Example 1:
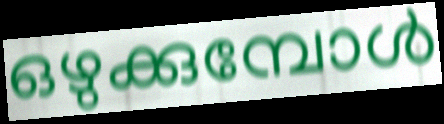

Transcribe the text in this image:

ഒഴുക്കുമ്പോൾ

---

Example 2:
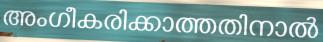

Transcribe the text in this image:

അംഗീകരിക്കാത്തതിനാൽ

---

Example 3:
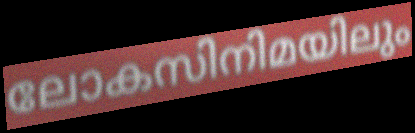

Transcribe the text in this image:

ലോകസിനിമയിലും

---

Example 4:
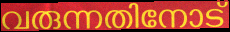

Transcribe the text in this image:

വരുന്നതിനോട്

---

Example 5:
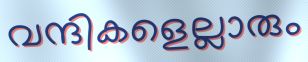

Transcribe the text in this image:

വന്ദികളെല്ലാരും